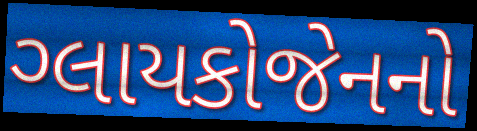
ગ્લાયકોજેનનો